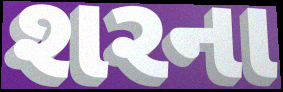
શરના